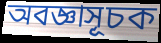
অবজ্ঞাসূচক